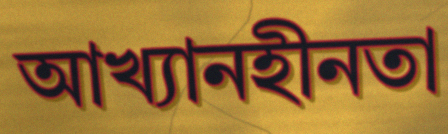
আখ্যানহীনতা